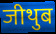
जीथुब